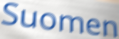
Suomen